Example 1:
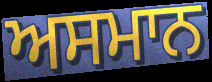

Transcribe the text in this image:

ਅਸਮਾਨ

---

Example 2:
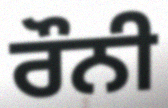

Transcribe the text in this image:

ਰੌਨੀ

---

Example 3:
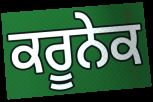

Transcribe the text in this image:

ਕਰੂਨੇਕ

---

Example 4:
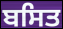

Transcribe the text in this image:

ਬਸਿਤ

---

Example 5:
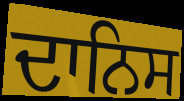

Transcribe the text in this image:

ਦਾਨਿਸ